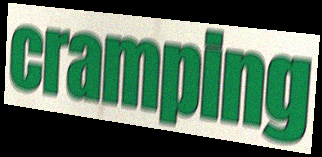
cramping